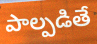
పాల్పడితే